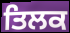
ਤਿਲਕ